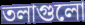
তলাগুলো